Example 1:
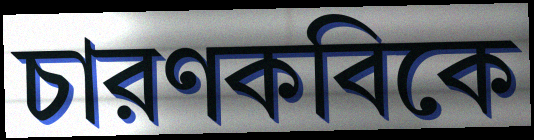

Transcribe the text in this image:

চারণকবিকে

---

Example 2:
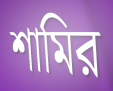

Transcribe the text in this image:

শামির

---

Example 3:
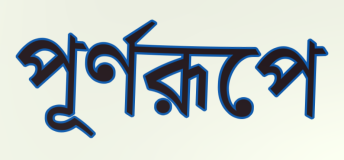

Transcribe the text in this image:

পূর্ণরূপে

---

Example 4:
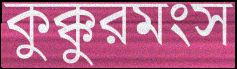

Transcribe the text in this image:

কুক্কুরমংস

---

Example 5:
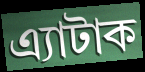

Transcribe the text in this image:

এ্যাটাক